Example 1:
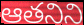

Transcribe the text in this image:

ఆతనిని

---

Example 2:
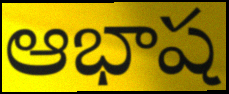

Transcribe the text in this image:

ఆభాష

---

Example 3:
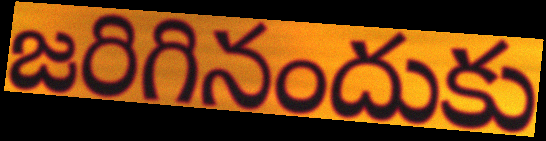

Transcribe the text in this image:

జరిగినందుకు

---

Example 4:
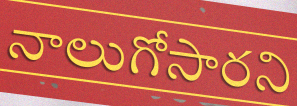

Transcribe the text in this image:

నాలుగోసారని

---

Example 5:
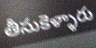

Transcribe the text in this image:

తీసుకెళ్ళారు